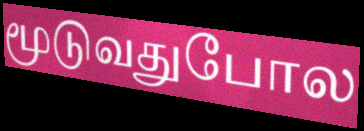
மூடுவதுபோல